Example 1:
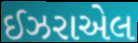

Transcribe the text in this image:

ઈઝરાએલ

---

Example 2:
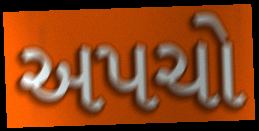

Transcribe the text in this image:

અપચો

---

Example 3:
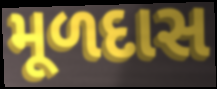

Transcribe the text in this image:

મૂળદાસ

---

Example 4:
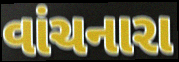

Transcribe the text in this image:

વાંચનારા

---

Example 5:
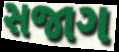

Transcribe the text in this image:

સજાગ